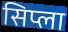
सिप्ला